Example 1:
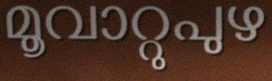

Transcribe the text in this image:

മൂവാറ്റുപുഴ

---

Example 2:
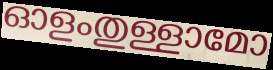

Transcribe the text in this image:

ഓളംതുള്ളാമോ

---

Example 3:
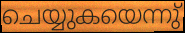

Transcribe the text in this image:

ചെയ്യുകയെന്നു്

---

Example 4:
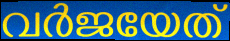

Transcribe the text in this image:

വർജയേത്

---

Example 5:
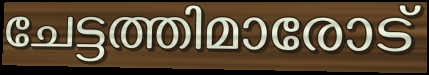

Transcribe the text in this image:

ചേട്ടത്തിമാരോട്